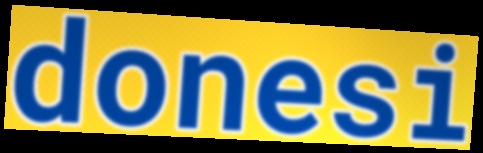
donesi